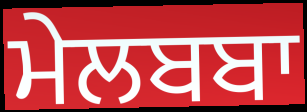
ਮੇਲਬਬਾ